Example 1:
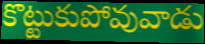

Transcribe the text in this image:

కొట్టుకుపోవువాడు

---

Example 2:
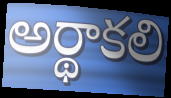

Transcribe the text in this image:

అర్థాకలి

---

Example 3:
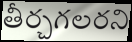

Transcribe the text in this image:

తీర్చగలరని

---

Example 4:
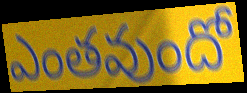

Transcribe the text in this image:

ఎంతవుందో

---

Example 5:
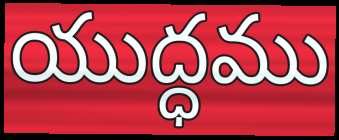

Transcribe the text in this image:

యుద్ధము